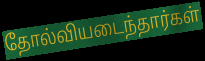
தோல்வியடைந்தார்கள்